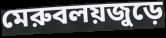
মেরুবলয়জুড়ে